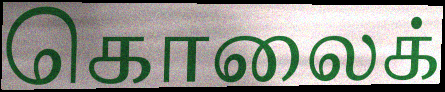
கொலைக்